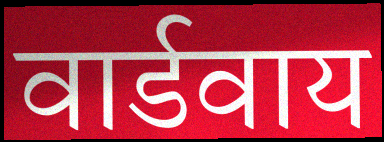
वार्डवाय